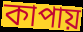
কাপায়